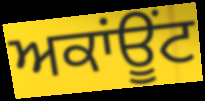
ਅਕਾਂਊਂਟ